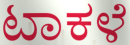
ಟಾಕಳೆ